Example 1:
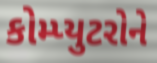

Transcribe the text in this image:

કોમ્પ્યુટરોને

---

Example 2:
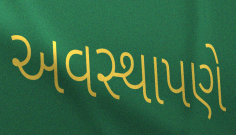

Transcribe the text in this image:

અવસ્થાપણે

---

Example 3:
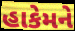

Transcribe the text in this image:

હાકેમને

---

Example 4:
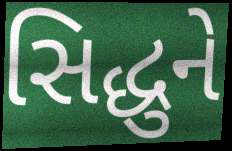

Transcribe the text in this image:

સિદ્ધુને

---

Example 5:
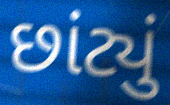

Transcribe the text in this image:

છાંટ્યું